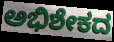
ಅಭಿಶೇಕದ